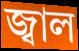
জ্বাল